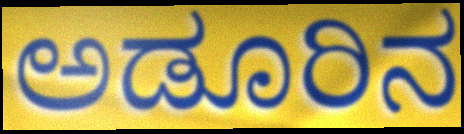
ಅಡೂರಿನ